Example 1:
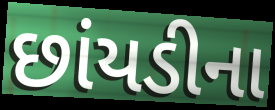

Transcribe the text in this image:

છાંયડીના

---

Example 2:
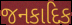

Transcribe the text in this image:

જનકાદિક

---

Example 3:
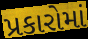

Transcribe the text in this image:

પ્રકારોમાં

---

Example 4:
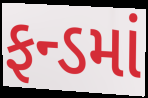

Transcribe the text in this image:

ફન્ડમાં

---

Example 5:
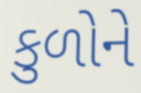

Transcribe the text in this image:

કુળોને